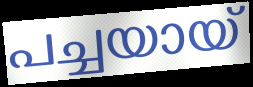
പച്ചയായ്